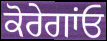
ਕੋਰੇਗਾਂਓ